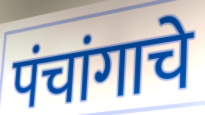
पंचांगाचे